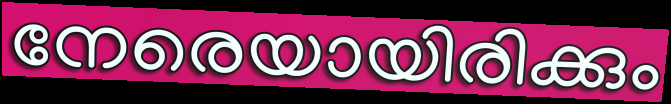
നേരെയായിരിക്കും